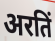
अरतिं